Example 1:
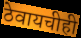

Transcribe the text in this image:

ठेवायचीही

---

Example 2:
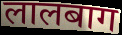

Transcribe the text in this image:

लालबाग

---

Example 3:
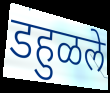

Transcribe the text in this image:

डहुळले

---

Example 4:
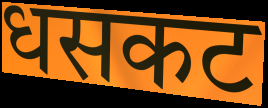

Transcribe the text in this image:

धसकट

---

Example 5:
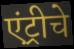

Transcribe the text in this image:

एंट्रीचे